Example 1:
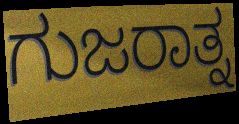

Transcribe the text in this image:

ಗುಜರಾತ್ನ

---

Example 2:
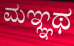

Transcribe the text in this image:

ಮಞ್ಞಥ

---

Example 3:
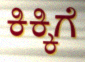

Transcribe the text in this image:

ಕಿಕ್ಕಿಗೆ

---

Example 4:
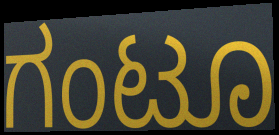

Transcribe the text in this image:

ಗಂಟೂ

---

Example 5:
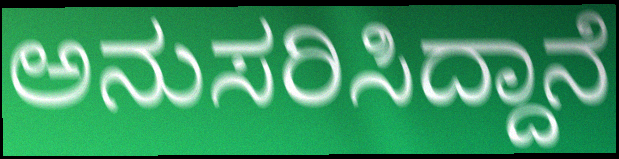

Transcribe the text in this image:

ಅನುಸರಿಸಿದ್ದಾನೆ